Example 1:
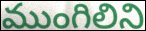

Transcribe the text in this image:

ముంగిలిని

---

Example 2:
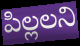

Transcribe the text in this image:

పిల్లలని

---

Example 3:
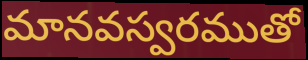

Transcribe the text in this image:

మానవస్వరముతో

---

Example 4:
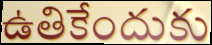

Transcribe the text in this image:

ఉతికేందుకు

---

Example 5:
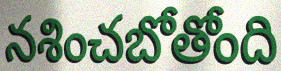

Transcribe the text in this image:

నశించబోతోంది